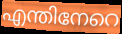
എന്തിനേറെ